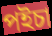
পইচা